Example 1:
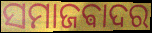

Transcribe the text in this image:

ସମାଜଵାଦର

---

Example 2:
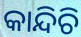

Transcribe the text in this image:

କାନ୍ଦିଚି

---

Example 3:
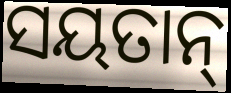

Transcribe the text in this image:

ସୟତାନ୍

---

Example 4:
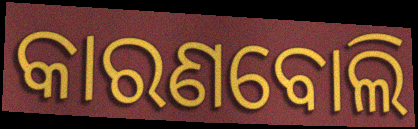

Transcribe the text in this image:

କାରଣବୋଲି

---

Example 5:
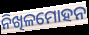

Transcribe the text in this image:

ନିଖିଳମୋହନ